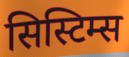
सिस्टिम्स